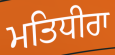
ਮਤਿਧੀਰਾ